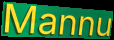
Mannu